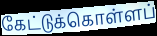
கேட்டுக்கொள்ளப்